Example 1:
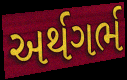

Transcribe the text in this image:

અર્થગર્ભ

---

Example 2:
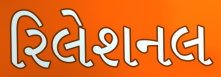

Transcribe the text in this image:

રિલેશનલ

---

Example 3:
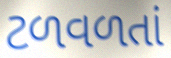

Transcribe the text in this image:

ટળવળતાં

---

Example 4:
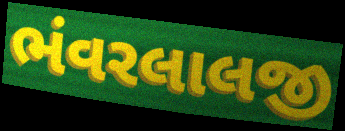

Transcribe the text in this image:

ભંવરલાલજી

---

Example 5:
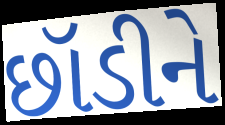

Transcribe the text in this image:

છૉડીને